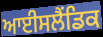
ਆਈਸਲੈਂਡਿਕ